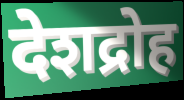
देशद्रोह